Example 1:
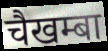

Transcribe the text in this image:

चैखम्बा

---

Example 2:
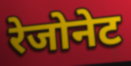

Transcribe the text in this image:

रेजोनेट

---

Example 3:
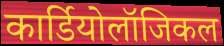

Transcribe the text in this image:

कार्डियोलॉजिकल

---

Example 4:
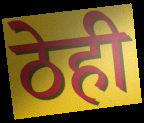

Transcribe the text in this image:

ठेही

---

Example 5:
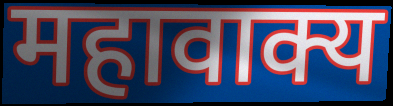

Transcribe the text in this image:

महावाक्य